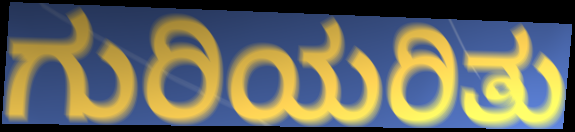
ಗುರಿಯರಿತು